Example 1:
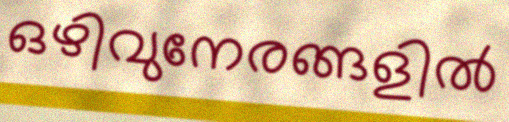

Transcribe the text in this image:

ഒഴിവുനേരങ്ങളിൽ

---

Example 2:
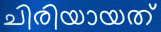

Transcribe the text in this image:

ചിരിയായത്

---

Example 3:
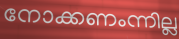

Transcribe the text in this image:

നോക്കണംന്നില്ല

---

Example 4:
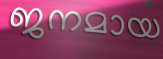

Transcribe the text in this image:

ജനമായ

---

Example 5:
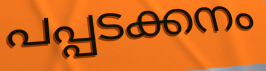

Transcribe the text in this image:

പപ്പടക്കനം